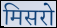
मिसरो